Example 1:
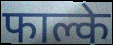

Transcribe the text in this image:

फाल्के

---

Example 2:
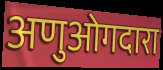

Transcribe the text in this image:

अणुओगदारा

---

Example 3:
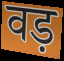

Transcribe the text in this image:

वड़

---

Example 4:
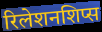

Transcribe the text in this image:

रिलेशनशिप्स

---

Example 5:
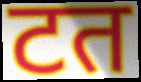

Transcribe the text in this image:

टत